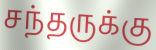
சந்தருக்கு